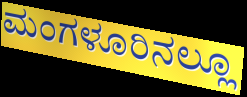
ಮಂಗಳೂರಿನಲ್ಲೂ